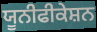
ਯੂਨੀਫੀਕੇਸ਼ਨ